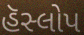
હૅસ્લોપ